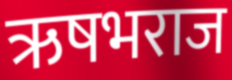
ऋषभराज